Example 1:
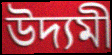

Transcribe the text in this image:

উদ্যমী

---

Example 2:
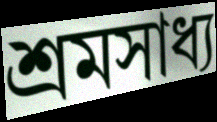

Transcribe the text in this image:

শ্ৰমসাধ্য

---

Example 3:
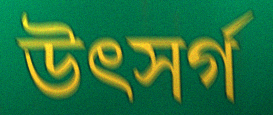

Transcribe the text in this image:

উৎসৰ্গ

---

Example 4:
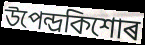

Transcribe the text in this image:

উপেন্দ্ৰকিশোৰ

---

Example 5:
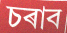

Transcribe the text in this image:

চৰাব